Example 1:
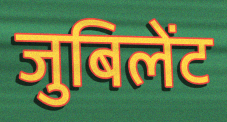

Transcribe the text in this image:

जुबिलेंट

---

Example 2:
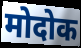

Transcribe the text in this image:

मोदोक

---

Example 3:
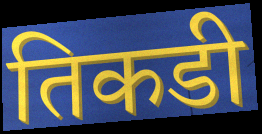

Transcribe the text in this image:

तिकडी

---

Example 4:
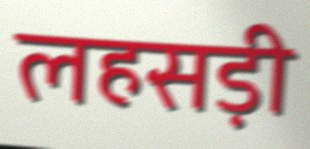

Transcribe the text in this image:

लहसड़ी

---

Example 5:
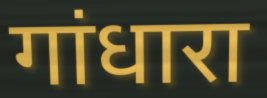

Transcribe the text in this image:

गांधारा